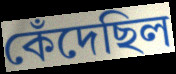
কেঁদেছিল